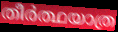
തീർത്ഥയാത്ര